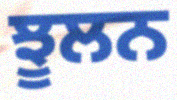
ਝੂਲਨ